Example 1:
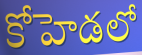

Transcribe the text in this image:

కోహెడలో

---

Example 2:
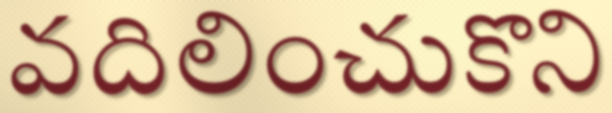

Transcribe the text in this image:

వదిలించుకొని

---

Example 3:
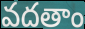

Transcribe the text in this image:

వదతాం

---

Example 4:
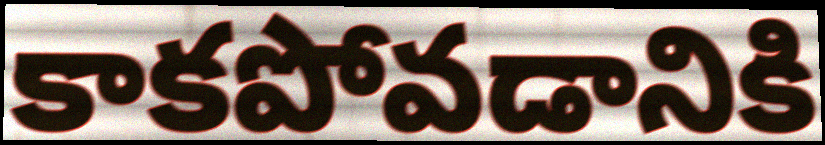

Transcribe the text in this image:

కాకపోవడానికి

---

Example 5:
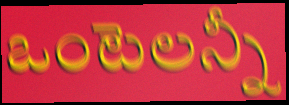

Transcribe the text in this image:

ఒంటెలన్నీ